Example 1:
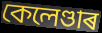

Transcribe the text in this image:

কেলেণ্ডাৰ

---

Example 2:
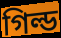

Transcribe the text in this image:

গিল্ড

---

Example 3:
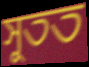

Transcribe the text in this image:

সুতত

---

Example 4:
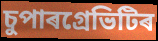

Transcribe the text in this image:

চুপাৰগ্ৰেভিটিৰ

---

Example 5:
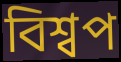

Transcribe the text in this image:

বিশ্বপ